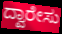
ದ್ವಾರೇಸು